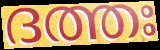
ദത്തഃ